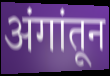
अंगांतून